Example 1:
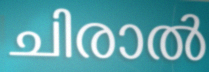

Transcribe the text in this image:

ചിരാൽ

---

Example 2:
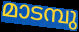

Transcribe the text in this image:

മാടമ്പു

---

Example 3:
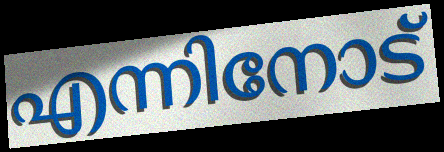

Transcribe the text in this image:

എന്നിനോട്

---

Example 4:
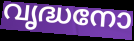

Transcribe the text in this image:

വൃദ്ധനോ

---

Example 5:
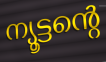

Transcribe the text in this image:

ന്യൂട്ടന്റെ